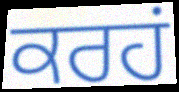
ਕਰਹਂ